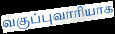
வகுப்புவாரியாக